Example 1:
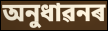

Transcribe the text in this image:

অনুধাৱনৰ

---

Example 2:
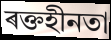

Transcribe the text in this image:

ৰক্তহীনতা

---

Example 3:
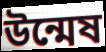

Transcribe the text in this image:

উন্মেষ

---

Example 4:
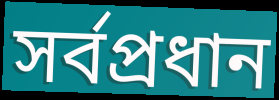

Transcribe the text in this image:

সৰ্বপ্ৰধান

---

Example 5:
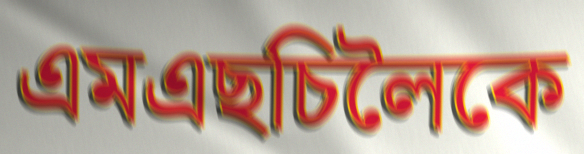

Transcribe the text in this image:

এমএছচিলৈকে